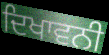
ਦਿਖਾਵਨੀ